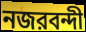
নজরবন্দী